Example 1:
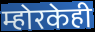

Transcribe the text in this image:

म्होरकेही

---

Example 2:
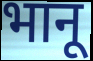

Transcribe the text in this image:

भानू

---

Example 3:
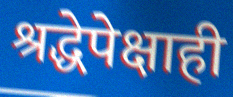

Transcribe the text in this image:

श्रद्धेपेक्षाही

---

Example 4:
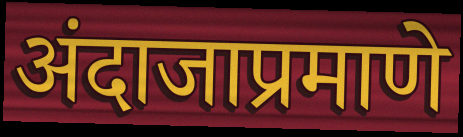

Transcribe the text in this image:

अंदाजाप्रमाणे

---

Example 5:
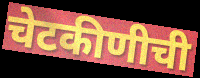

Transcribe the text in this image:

चेटकीणीची